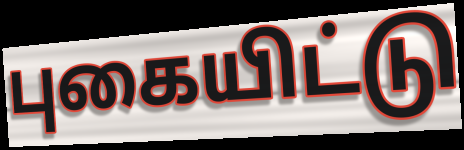
புகையிட்டு